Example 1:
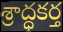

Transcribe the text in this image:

శ్రాద్ధకర్త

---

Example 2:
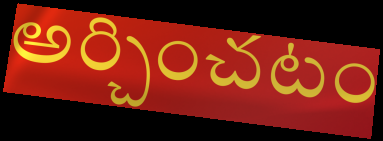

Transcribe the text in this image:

అర్చించటం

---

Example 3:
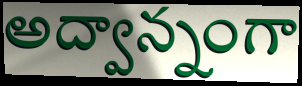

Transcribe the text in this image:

అద్వాన్నంగా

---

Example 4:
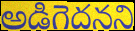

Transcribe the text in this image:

అడిగెదనని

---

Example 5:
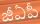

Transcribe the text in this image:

జీఏపీ